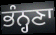
ਭੰਨ੍ਹਣਾ